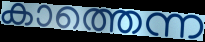
കാത്തെന്ന